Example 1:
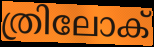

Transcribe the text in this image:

ത്രിലോക്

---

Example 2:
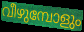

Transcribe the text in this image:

വീഴുമ്പോളും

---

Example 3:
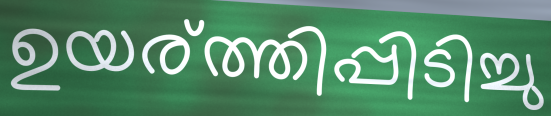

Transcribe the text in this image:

ഉയര്ത്തിപ്പിടിച്ചു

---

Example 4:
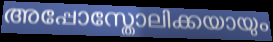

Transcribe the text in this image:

അപ്പോസ്തോലിക്കയായും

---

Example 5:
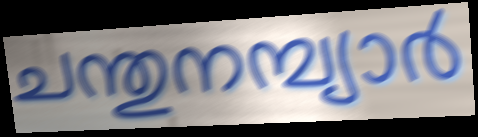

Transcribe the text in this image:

ചന്തുനമ്പ്യാർ